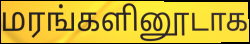
மரங்களினூடாக